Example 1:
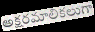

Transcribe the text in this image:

అక్షరమాలికలుగా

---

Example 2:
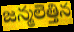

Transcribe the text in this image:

జన్మలెత్తిన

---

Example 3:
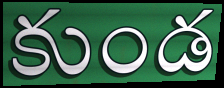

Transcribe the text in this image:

కుండ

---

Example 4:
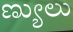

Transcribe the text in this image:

ణ్యులు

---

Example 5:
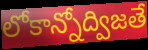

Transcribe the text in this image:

లోకాన్నోద్విజతే